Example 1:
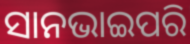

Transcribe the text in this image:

ସାନଭାଇପରି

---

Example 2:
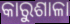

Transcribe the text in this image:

କାରୁଶାଳା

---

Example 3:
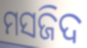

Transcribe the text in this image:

ମସଜିଦ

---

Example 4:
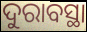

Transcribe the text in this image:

ଦୁରାବସ୍ଥା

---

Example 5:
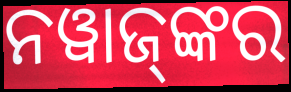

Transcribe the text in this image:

ନୱାଜ୍‍ଙ୍କର